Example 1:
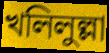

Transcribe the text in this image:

খলিলুল্লা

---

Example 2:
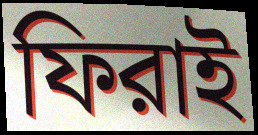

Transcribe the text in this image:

ফিরাই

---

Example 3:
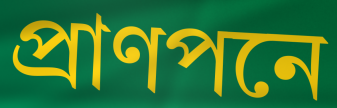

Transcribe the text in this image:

প্রাণপনে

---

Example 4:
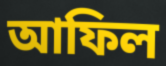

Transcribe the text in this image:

আফিল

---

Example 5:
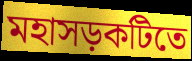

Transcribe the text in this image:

মহাসড়কটিতে